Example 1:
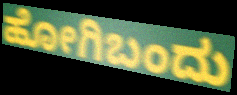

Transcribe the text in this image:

ಹೋಗಿಬಂದು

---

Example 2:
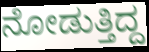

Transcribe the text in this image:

ನೋಡುತ್ತಿದ್ದ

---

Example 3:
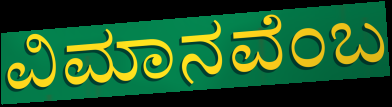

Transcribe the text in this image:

ವಿಮಾನವೆಂಬ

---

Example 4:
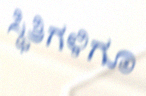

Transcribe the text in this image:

ಸ್ಥಿತಿಗಳಿಗೂ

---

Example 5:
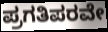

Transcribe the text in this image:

ಪ್ರಗತಿಪರವೇ